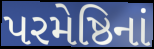
પરમેષ્ઠિનાં